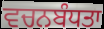
ਵਚਨਬੰਧਤਾ